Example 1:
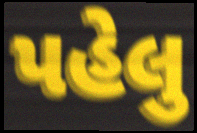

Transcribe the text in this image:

પહેલુ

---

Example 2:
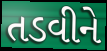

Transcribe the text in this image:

તડવીને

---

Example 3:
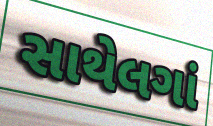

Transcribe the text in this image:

સાથેલગાં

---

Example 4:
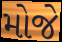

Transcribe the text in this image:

મોજે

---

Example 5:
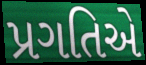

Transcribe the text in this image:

પ્રગતિએ